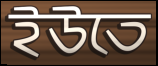
ইউতে